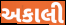
અકાલી